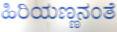
ಹಿರಿಯಣ್ಣನಂತೆ